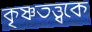
কৃষ্ণতত্ত্বকে